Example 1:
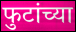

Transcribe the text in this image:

फुटांच्‍या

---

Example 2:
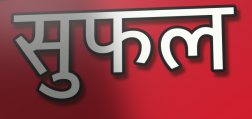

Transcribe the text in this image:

सुफल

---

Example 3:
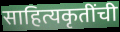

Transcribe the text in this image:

साहित्यकृतींची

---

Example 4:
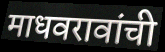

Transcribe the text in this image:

माधवरावांची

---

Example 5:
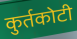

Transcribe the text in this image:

कुर्तकोटी